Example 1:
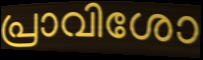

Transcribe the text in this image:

പ്രാവിശോ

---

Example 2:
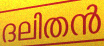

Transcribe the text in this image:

ദലിതൻ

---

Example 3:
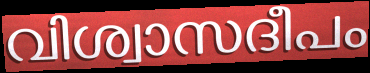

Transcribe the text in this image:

വിശ്വാസദീപം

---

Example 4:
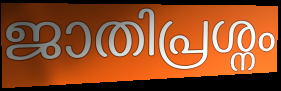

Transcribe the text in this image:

ജാതിപ്രശ്നം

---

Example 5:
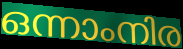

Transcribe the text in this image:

ഒന്നാംനിര